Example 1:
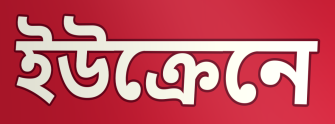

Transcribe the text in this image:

ইউক্রেনে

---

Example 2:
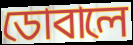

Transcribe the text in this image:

ডোবালে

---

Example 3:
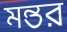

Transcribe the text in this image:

মন্তর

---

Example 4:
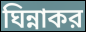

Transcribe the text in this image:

ঘিন্নাকর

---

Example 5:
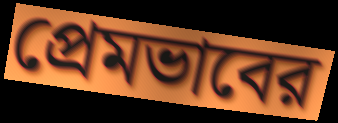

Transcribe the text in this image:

প্রেমভাবের